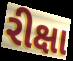
રીક્ષા